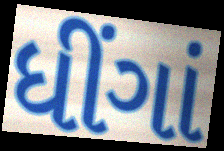
ધીંગાં